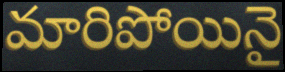
మారిపోయినై